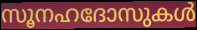
സൂനഹദോസുകൾ